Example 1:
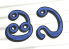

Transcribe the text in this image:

తిని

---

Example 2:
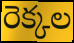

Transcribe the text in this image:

రెక్కల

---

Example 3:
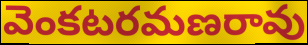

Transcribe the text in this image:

వెంకటరమణరావు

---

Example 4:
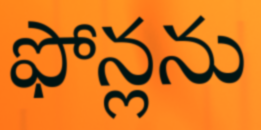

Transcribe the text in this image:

ఫోన్లను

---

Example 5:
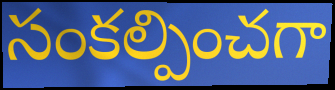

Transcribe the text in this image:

సంకల్పించగా